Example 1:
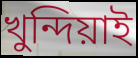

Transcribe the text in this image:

খুন্দিয়াই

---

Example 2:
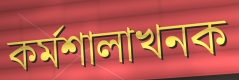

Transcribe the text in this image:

কৰ্মশালাখনক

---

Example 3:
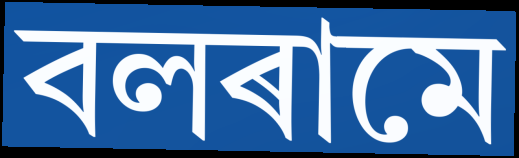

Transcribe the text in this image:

বলৰামে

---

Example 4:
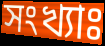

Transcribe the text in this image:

সংখ্যাঃ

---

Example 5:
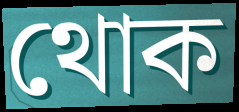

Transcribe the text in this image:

থোক